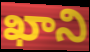
ఖాని